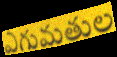
ఎగుమతుల